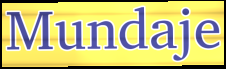
Mundaje